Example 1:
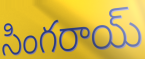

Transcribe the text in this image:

సింగరాయ్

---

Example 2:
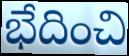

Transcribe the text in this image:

భేదించి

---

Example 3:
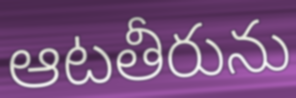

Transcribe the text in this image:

ఆటతీరును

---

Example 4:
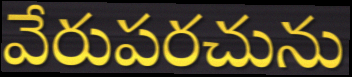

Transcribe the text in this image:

వేరుపరచును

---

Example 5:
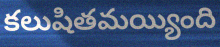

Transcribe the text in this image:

కలుషితమయ్యింది